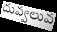
దువ్వలువ